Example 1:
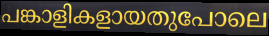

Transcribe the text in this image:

പങ്കാളികളായതുപോലെ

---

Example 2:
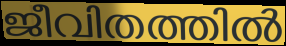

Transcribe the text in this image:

ജീവിതത്തിൽ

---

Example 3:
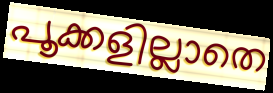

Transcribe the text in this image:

പൂക്കളില്ലാതെ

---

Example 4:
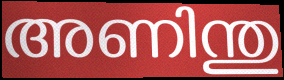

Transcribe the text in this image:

അണിന്തു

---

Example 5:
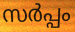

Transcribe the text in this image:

സർപ്പം